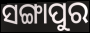
ସଙ୍ଗାପୁର